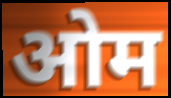
ओम